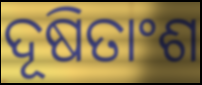
ଦୂଷିତାଂଶ